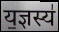
य॒ज्ञस्य॑